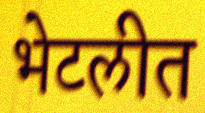
भेटलीत